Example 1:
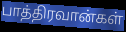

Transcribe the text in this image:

பாத்திரவான்கள்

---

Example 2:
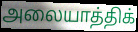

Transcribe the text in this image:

அலையாத்திக்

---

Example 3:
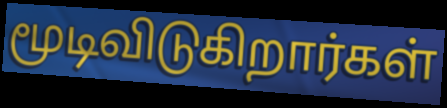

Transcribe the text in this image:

மூடிவிடுகிறார்கள்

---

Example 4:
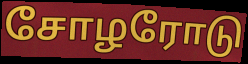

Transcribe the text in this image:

சோழரோடு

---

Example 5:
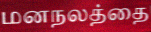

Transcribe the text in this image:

மனநலத்தை